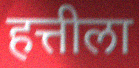
हत्तीला